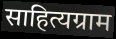
साहित्यग्राम